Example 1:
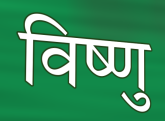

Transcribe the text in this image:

विष्‍णु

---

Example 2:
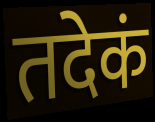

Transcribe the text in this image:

तदेकं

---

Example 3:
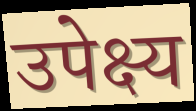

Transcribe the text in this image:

उपेक्ष्य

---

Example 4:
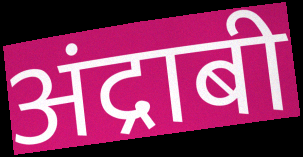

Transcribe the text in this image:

अंद्राबी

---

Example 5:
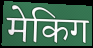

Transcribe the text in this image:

मेकिग